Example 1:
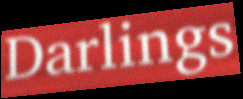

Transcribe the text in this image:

Darlings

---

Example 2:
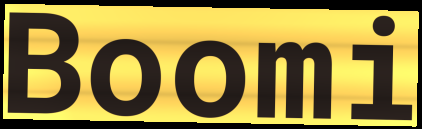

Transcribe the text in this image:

Boomi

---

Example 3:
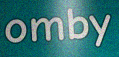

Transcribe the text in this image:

omby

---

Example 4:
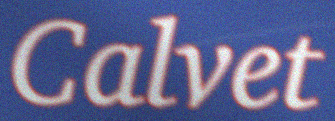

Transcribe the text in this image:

Calvet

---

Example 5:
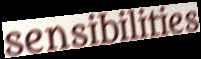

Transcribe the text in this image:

sensibilities